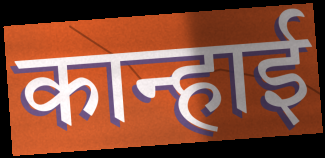
कान्हाई